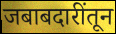
जबाबदारींतून